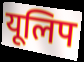
यूलिप